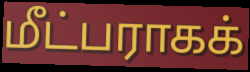
மீட்பராகக்